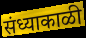
संध्‍याकाळी